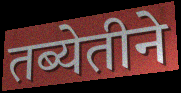
तब्येतीने